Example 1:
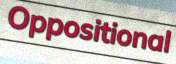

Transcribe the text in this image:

Oppositional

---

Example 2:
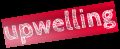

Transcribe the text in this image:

upwelling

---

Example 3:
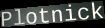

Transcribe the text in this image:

Plotnick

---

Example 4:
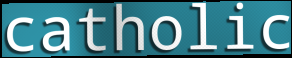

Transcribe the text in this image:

catholic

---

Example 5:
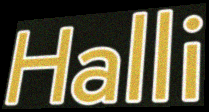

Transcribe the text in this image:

Halli